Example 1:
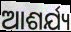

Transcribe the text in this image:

ଆଶର୍ଯ୍ୟ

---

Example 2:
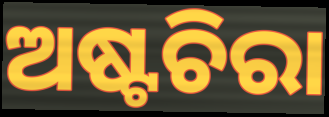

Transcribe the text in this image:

ଅଷ୍ଟଚିରା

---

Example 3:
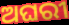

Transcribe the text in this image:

ଅଘରୀ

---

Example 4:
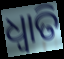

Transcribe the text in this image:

ଧ୍ବାତି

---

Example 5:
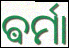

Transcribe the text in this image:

ଵର୍ମା